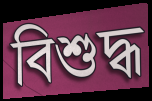
বিশুদ্ধ